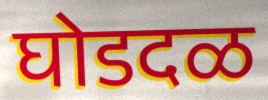
घोडदळ